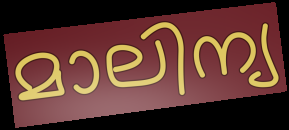
മാലിന്യ